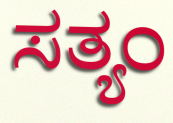
ಸತ್ಯಂ